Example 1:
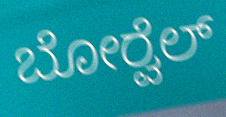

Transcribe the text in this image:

ಬೋರ್‍ವೆಲ್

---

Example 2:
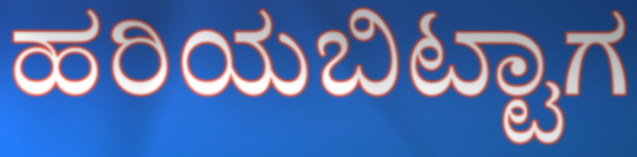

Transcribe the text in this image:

ಹರಿಯಬಿಟ್ಟಾಗ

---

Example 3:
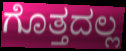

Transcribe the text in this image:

ಗೊತ್ತದಲ್ಲ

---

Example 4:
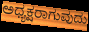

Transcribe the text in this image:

ಅಧ್ಯಕ್ಷರಾಗುವುದು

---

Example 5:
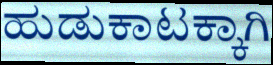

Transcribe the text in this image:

ಹುಡುಕಾಟಕ್ಕಾಗಿ